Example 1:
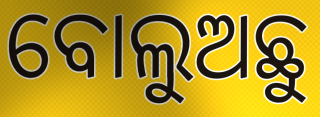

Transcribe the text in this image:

ବୋଲୁଅଛୁ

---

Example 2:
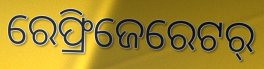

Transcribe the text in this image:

ରେଫ୍ରିଜେରେଟର୍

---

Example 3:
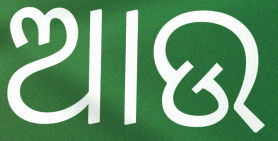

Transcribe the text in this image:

ଆଉ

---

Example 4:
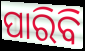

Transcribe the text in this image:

ପାରିବି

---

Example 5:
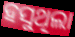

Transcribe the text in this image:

ହସୁଥିଲା